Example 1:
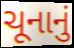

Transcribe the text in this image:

ચૂનાનું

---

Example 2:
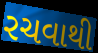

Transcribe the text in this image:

રચવાથી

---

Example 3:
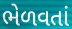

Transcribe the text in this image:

ભેળવતાં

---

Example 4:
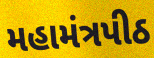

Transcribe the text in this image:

મહામંત્રપીઠ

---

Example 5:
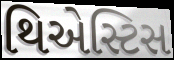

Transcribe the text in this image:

થિએસ્ટિસ